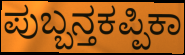
ಪುಬ್ಬನ್ತಕಪ್ಪಿಕಾ